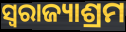
ସ୍ୱରାଜ୍ୟାଶ୍ରମ